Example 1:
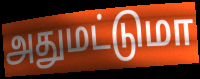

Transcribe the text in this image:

அதுமட்டுமா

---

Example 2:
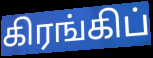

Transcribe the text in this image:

கிரங்கிப்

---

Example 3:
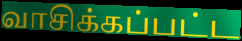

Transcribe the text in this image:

வாசிக்கப்பட்ட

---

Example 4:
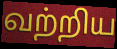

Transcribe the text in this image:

வற்றிய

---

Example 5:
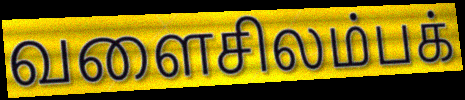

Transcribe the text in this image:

வளைசிலம்பக்